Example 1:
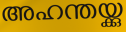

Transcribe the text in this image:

അഹന്തയ്ക്കു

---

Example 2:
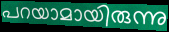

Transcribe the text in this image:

പറയാമായിരുന്നു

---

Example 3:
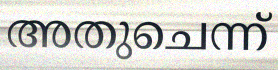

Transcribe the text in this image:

അതുചെന്ന്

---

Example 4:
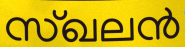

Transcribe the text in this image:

സ്ഖലൻ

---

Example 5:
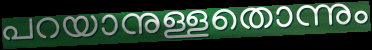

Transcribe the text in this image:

പറയാനുള്ളതൊന്നും